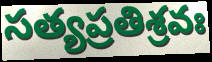
సత్యప్రతిశ్రవః